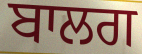
ਬਾਲਗ